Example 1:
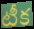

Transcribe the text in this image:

టీక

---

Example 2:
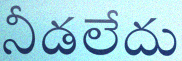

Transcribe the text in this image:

నీడలేదు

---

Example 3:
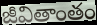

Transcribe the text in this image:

జీవితాంతం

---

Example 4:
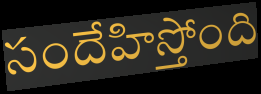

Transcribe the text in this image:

సందేహిస్తోంది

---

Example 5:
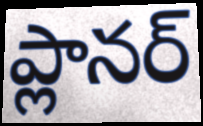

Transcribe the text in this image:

ప్లానర్